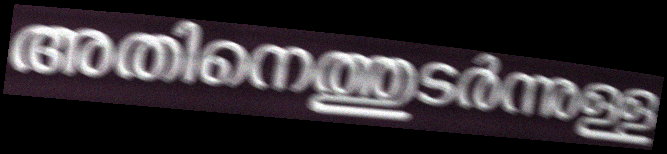
അതിനെത്തുടർന്നുള്ള